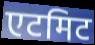
एटमिट